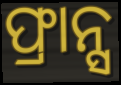
ଫ୍ରାନ୍ସ